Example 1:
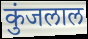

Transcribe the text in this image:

कुंजलाल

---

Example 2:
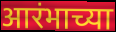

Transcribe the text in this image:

आरंभाच्या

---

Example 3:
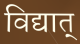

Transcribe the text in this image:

विद्यात्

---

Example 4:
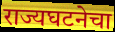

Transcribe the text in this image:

राज्यघटनेचा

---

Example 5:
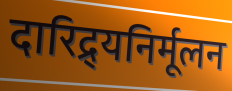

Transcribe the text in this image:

दारिद्र्यनिर्मूलन